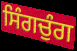
ਸਿੰਗਚੁੰਗ